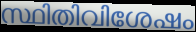
സ്ഥിതിവിശേഷം